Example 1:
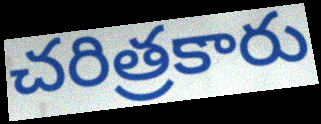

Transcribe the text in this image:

చరిత్రకారు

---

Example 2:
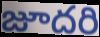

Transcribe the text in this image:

జూదరి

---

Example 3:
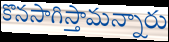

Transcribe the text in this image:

కొనసాగిస్తామన్నారు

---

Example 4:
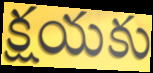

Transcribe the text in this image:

క్షయకు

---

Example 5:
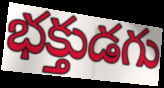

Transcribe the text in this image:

భక్తుడగు